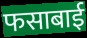
फसाबाई